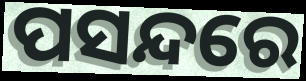
ପସନ୍ଦରେ